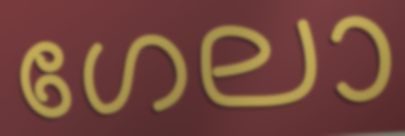
ഗേലാ